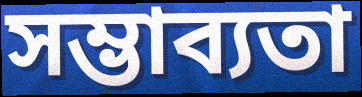
সম্ভাব্যতা